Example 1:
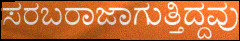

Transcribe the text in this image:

ಸರಬರಾಜಾಗುತ್ತಿದ್ದವು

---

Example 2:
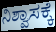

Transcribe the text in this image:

ನಿಶ್ವಾಸಕ್ಕೆ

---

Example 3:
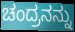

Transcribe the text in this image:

ಚಂದ್ರನನ್ನು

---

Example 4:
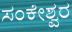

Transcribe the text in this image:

ಸಂಕೇಶ್ವರ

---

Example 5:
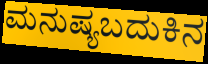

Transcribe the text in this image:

ಮನುಷ್ಯಬದುಕಿನ